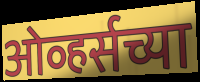
ओव्हर्सच्या